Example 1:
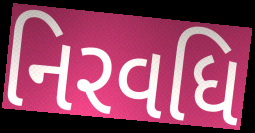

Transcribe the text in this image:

નિરવધિ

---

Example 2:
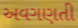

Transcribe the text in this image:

અવગણતી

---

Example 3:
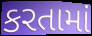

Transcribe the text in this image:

કરતામાં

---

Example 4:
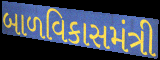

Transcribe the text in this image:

બાળવિકાસમંત્રી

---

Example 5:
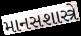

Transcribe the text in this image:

માનસશાસ્ત્રે